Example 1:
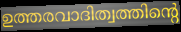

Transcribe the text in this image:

ഉത്തരവാദിത്വത്തിന്റെ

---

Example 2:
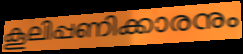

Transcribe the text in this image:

കൂലിപ്പണിക്കാരനും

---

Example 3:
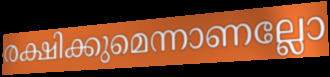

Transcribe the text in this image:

രക്ഷിക്കുമെന്നാണല്ലോ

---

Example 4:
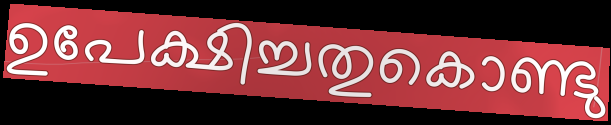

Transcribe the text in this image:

ഉപേക്ഷിച്ചതുകൊണ്ടു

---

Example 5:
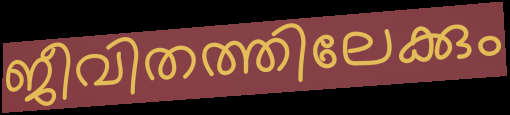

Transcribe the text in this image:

ജീവിതത്തിലേക്കും